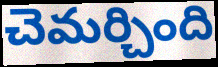
చెమర్చింది